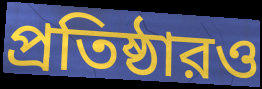
প্রতিষ্ঠারও